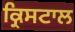
ਕ੍ਰਿਸਟਾਲ